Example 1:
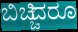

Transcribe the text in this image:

ಬಿಚ್ಚಿದರೂ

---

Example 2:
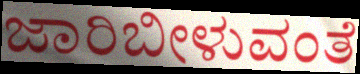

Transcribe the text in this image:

ಜಾರಿಬೀಳುವಂತೆ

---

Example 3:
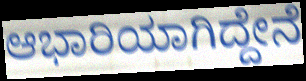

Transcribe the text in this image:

ಆಭಾರಿಯಾಗಿದ್ದೇನೆ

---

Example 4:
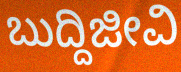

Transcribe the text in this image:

ಬುದ್ದಿಜೀವಿ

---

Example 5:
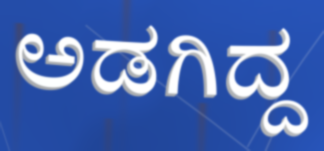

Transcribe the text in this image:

ಅಡಗಿದ್ದ